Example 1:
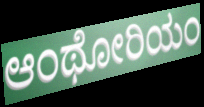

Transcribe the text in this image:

ಆಂಥೋರಿಯಂ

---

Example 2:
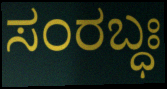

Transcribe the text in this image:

ಸಂರಬ್ಧಃ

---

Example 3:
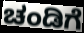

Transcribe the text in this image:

ಚಂಡಿಗೆ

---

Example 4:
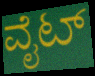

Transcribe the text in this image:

ವೈಟ್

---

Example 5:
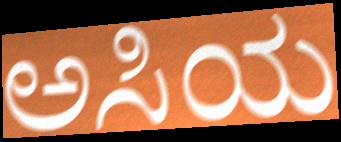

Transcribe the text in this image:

ಅಸಿಯ